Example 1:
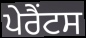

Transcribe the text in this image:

ਪੇਰੈਂਟਸ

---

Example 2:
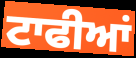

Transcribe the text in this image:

ਟਾਫੀਆਂ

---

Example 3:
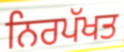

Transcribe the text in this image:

ਨਿਰਪੱਖਤ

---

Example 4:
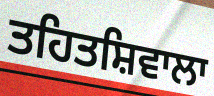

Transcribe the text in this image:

ਤਹਿਤਸ਼ਿਵਾਲਾ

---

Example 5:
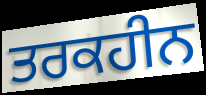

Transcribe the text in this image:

ਤਰਕਹੀਨ